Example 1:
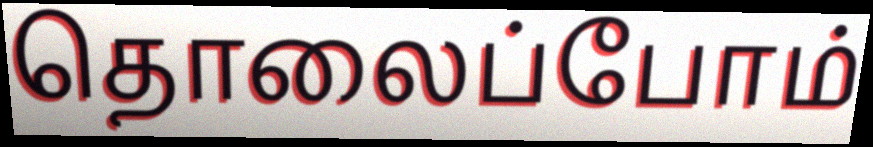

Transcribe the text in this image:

தொலைப்போம்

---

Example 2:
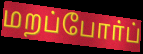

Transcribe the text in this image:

மறப்போர்ப்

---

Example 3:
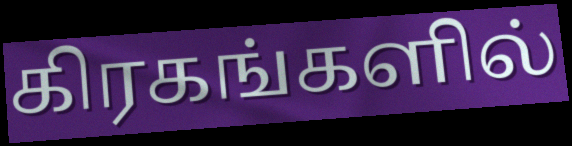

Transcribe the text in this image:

கிரகங்களில்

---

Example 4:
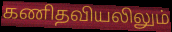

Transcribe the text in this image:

கணிதவியலிலும்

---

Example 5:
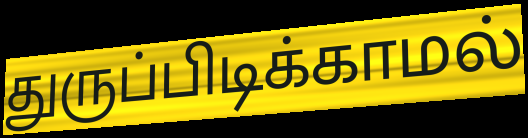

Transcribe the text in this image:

துருப்பிடிக்காமல்